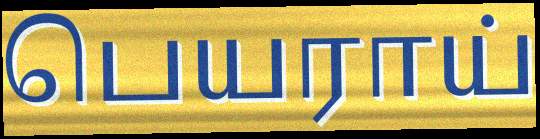
பெயராய்